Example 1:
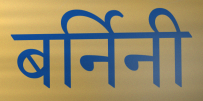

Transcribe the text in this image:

बर्निनी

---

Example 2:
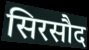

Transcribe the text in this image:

सिरसौद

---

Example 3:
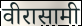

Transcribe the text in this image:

वीरासामी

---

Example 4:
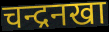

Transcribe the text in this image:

चन्द्रनखा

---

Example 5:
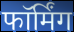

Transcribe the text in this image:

फॉर्मिंग